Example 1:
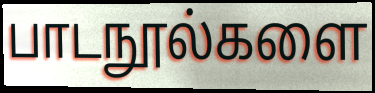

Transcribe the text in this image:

பாடநூல்களை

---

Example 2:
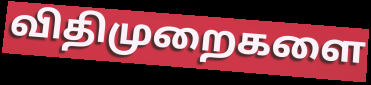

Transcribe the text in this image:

விதிமுறைகளை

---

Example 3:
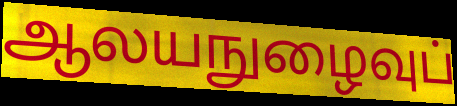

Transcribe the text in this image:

ஆலயநுழைவுப்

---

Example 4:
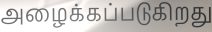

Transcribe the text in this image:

அழைக்கப்படுகிறது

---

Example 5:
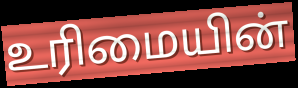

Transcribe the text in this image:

உரிமையின்